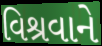
વિશ્રવાને